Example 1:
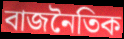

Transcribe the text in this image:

বাজনৈতিক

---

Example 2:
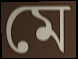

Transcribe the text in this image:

মে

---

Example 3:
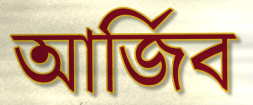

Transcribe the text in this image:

আৰ্জিব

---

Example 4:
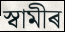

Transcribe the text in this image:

স্বামীৰ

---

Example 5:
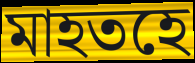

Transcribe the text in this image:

মাহতহে